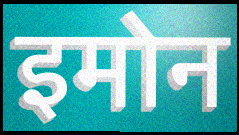
इमोन